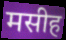
मसीह